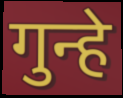
गुन्हे